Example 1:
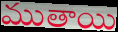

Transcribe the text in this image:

ముతాయి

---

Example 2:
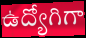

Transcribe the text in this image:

ఉద్యోగిగా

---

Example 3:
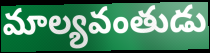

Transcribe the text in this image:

మాల్యవంతుడు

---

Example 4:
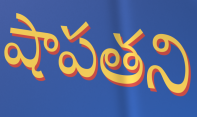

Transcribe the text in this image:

షాపతని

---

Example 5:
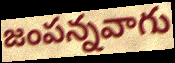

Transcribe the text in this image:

జంపన్నవాగు